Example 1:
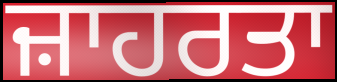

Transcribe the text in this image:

ਜ਼ਾਹਰਤਾ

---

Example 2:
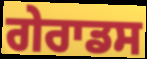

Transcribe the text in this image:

ਗੇਰਾਡਸ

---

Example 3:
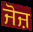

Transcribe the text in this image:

ਜੋਜ਼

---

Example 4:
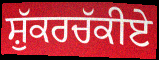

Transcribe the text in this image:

ਸ਼ੁੱਕਰਚੱਕੀਏ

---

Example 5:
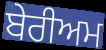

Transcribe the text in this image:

ਬੇਰੀਅਮ